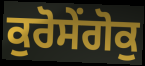
ਕੁਰੋਸੇਂਗੋਕੁ